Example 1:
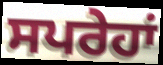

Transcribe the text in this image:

ਸਪਰੇਹਾਂ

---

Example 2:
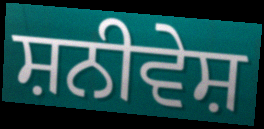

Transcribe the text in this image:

ਸ਼ਨੀਵੇਸ਼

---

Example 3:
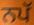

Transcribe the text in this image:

ਨਪੱ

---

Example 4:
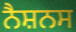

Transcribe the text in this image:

ਨੈਸ਼ਨਸ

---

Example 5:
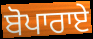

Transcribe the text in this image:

ਬੋਪਾਰਾਏ